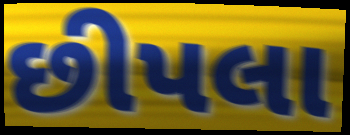
છીપલા